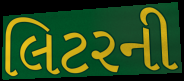
લિટરની